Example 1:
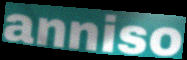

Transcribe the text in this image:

anniso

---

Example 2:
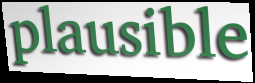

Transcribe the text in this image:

plausible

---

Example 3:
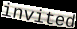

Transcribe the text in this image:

invited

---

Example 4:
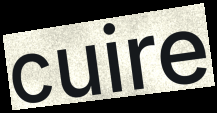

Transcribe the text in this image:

cuire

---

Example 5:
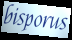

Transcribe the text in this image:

bisporus